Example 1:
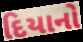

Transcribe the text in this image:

દિયાનો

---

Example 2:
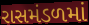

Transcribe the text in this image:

રાસમંડળમાં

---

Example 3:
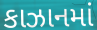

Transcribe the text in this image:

કાઝાનમાં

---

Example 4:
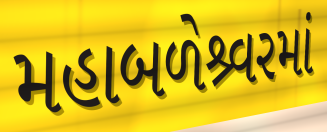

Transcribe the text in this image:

મહાબળેશ્ર્વરમાં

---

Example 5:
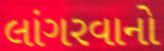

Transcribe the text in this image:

લાંગરવાનો